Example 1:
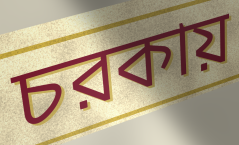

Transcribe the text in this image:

চরকায়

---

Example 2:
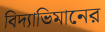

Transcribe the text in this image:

বিদ্যাভিমানের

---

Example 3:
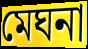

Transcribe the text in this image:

মেঘনা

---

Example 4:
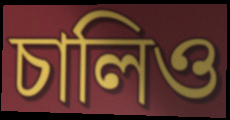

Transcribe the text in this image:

চালিও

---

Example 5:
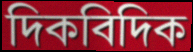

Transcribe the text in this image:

দিকবিদিক